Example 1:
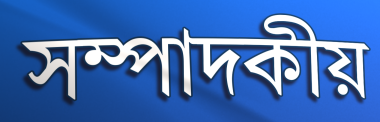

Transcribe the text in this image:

সম্পাদকীয়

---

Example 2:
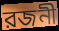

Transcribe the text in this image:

রজনী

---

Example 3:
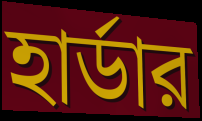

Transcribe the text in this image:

হার্ডার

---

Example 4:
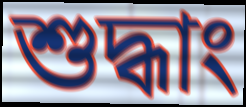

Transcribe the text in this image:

শুদ্ধাং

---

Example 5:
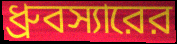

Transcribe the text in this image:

ধ্রুবস্যারের